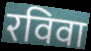
रविवा